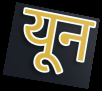
यून